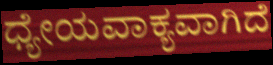
ಧ್ಯೇಯವಾಕ್ಯವಾಗಿದೆ